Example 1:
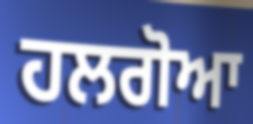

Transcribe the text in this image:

ਹਲਗੋਆ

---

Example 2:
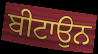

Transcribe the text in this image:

ਬੀਟਾਉਨ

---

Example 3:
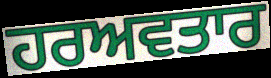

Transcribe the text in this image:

ਹਰਅਵਤਾਰ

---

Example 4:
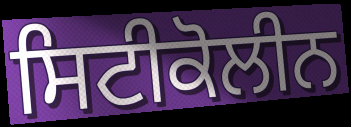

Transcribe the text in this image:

ਸਿਟੀਕੋਲੀਨ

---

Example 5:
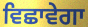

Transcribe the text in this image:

ਵਿਛਾਵੇਗਾ